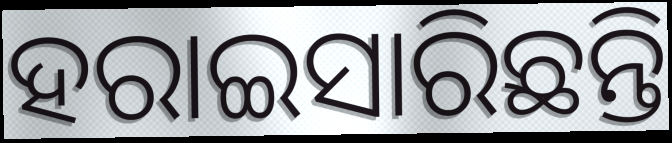
ହରାଇସାରିଛନ୍ତି